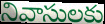
నివాసులకు